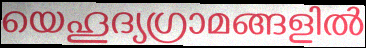
യെഹൂദ്യഗ്രാമങ്ങളിൽ